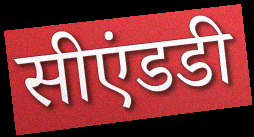
सीएंडडी